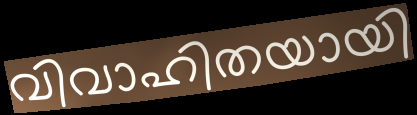
വിവാഹിതയായി